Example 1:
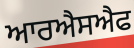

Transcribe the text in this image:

ਆਰਐਸਐਫ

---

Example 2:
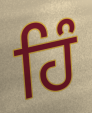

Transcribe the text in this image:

ਹਿੰ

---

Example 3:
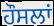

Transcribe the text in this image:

ਹੌਸਲਾਂ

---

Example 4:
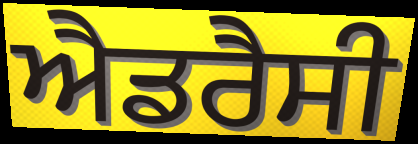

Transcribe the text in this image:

ਐਡਰੈਸੀ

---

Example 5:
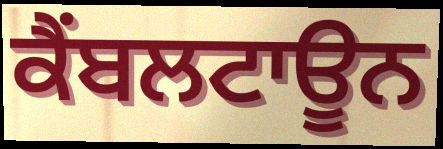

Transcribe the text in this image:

ਕੈਂਬਲਟਾਊਨ